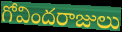
గోవిందరాజులు